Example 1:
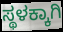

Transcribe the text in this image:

ಸ್ಥಳಕ್ಕಾಗಿ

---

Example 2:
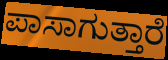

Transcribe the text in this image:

ಪಾಸಾಗುತ್ತಾರೆ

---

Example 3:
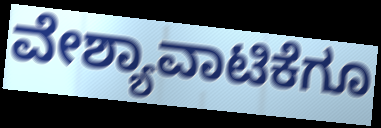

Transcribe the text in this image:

ವೇಶ್ಯಾವಾಟಿಕೆಗೂ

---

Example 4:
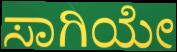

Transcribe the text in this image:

ಸಾಗಿಯೇ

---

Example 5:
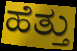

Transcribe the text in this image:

ಹೆತ್ತು